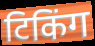
टिकिंग